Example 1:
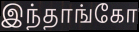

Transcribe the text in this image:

இந்தாங்கோ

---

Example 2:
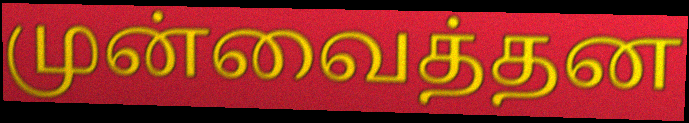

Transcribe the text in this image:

முன்வைத்தன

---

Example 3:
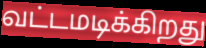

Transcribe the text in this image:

வட்டமடிக்கிறது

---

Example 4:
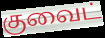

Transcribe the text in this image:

குவைட்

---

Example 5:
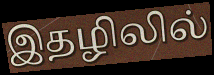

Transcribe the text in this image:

இதழிலில்